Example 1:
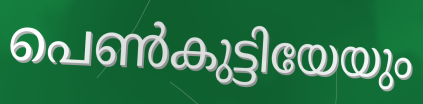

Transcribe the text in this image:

പെൺകുട്ടിയേയും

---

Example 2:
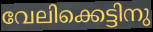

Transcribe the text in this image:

വേലിക്കെട്ടിനു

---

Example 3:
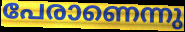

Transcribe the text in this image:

പേരാണെന്നു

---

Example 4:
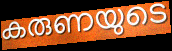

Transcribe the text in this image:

കരുണയുടെ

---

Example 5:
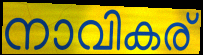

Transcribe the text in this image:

നാവികര്